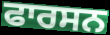
ਫਾਰਸਨ